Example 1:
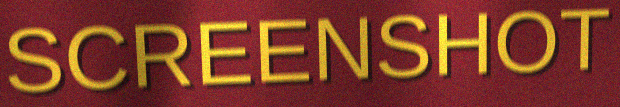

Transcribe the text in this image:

SCREENSHOT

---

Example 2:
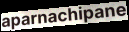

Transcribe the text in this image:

aparnachipane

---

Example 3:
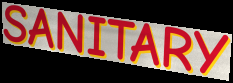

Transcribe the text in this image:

SANITARY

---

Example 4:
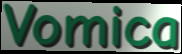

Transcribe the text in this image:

Vomica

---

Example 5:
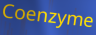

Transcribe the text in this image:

Coenzyme